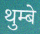
थुम्बे